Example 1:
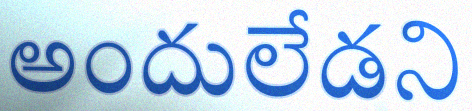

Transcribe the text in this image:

అందులేడని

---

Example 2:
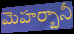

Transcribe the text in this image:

మెహర్బానీ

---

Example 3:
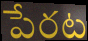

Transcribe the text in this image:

పేరట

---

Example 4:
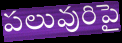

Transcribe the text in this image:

పలువురిపై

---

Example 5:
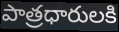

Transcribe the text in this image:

పాత్రధారులకి